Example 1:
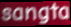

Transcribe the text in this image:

sangta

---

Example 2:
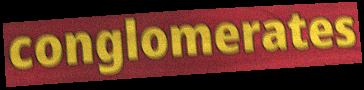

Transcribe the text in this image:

conglomerates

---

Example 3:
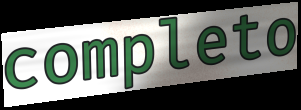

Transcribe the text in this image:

completo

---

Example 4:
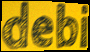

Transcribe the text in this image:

debi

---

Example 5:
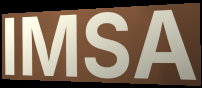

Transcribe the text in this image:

IMSA